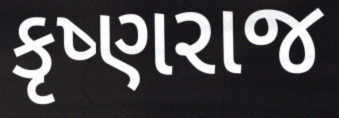
કૃષ્ણરાજ